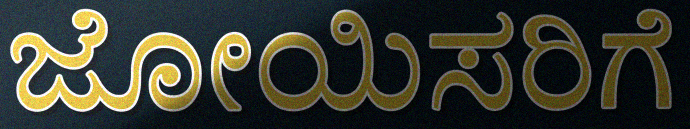
ಜೋಯಿಸರಿಗೆ